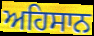
ਅਹਿਸਾਨ